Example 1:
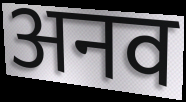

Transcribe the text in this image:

अनव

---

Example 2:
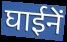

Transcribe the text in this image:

घाईनें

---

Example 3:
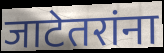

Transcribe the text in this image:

जाटेतरांना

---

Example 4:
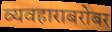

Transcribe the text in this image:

व्यवहाराबरोबर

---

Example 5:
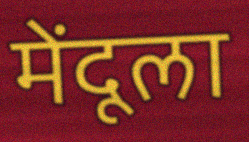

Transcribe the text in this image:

मेंदूला